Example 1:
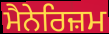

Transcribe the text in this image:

ਮੈਨੇਰਿਜ਼ਮ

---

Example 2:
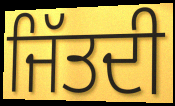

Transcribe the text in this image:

ਜਿੱਤਦੀ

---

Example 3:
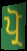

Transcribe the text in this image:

ਪ੍ਰੋ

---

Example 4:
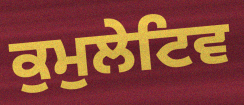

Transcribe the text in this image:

ਕੁਮੁਲੇਟਿਵ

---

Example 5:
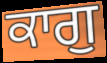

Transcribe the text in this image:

ਕਾਗੁ